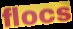
flocs